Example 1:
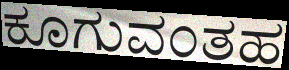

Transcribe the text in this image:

ಕೂಗುವಂತಹ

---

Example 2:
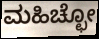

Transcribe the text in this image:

ಮಹಿಚ್ಛೋ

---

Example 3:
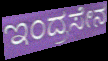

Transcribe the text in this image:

ಇಂದ್ರಸೇನ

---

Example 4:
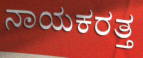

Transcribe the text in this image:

ನಾಯಕರತ್ತ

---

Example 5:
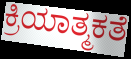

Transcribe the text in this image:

ಕ್ರಿಯಾತ್ಮಕತೆ